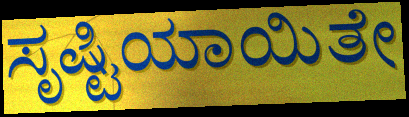
ಸೃಷ್ಟಿಯಾಯಿತೇ